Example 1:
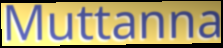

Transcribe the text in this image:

Muttanna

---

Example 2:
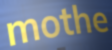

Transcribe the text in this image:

mothe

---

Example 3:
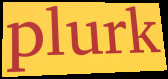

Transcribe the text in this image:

plurk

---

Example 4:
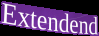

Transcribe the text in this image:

Extendend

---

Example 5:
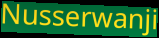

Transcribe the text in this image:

Nusserwanji